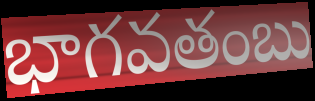
భాగవతంబు